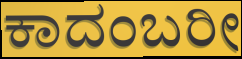
ಕಾದಂಬರೀ